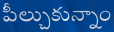
పీల్చుకున్నాం